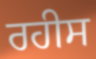
ਰਹੀਸ